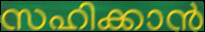
സഹിക്കാൻ